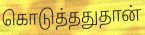
கொடுத்ததுதான்